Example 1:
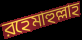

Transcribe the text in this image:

রহেমাহুল্লাহ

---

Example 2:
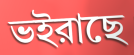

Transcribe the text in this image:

ভইরাছে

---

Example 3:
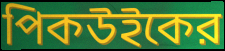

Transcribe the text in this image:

পিকউইকের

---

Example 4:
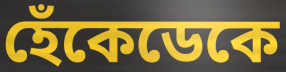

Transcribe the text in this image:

হেঁকেডেকে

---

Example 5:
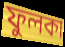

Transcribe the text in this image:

ফুলকা